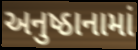
અનુષ્ઠાનામાં